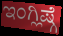
ಇಂಗ್ಲಿಷ್ಗೆ